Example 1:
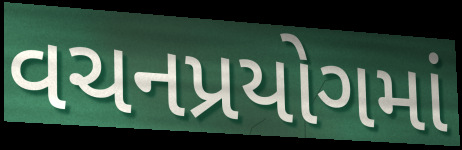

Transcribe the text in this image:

વચનપ્રયોગમાં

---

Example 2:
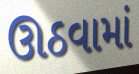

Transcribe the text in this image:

ઊઠવામાં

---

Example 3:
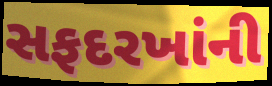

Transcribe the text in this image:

સફદરખાંની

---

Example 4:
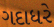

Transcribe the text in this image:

ગદાધરે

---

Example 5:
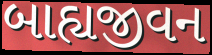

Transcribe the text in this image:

બાહ્યજીવન